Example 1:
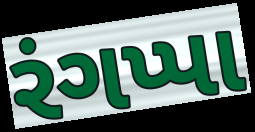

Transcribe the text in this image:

રંગપ્પા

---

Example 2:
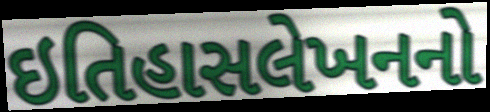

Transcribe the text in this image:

ઇતિહાસલેખનનો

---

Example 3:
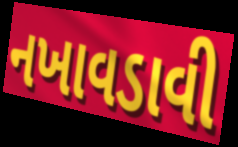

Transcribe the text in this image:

નખાવડાવી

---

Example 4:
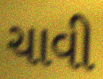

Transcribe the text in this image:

ચાવી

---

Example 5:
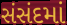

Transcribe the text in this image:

સંસંદમાં